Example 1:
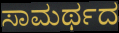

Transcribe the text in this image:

ಸಾಮರ್ಥದ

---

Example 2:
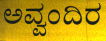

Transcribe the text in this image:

ಅವ್ವಂದಿರ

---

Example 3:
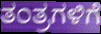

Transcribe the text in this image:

ತಂತ್ರಗಳಿಗೆ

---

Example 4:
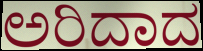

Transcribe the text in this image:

ಅರಿದಾದ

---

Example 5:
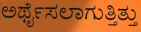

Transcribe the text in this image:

ಅರ್ಥೈಸಲಾಗುತ್ತಿತ್ತು